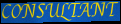
CONSULTANT